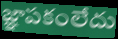
జ్ఞాపకంలేదు